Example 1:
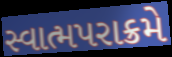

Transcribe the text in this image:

સ્વાત્મપરાક્રમે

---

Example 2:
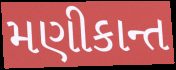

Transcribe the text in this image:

મણીકાન્ત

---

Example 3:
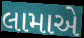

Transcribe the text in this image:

લામાએ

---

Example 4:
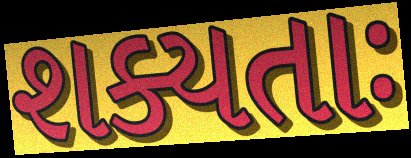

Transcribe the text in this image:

શક્યતાઃ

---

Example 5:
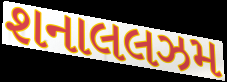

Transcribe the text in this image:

શનાલલઝમ